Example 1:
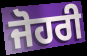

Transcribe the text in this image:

ਜੋਹਰੀ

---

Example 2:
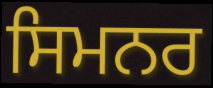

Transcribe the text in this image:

ਸਿਮਨਰ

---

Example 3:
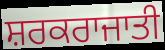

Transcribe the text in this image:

ਸ਼ਰਕਰਾਜਾਤੀ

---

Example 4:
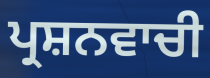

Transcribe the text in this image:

ਪ੍ਰਸ਼ਨਵਾਚੀ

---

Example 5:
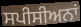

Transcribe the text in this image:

ਸਪੀਸੀਅਨਾਂ